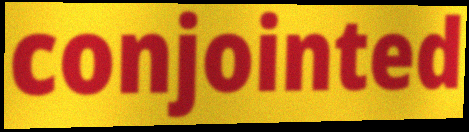
conjointed